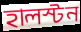
হালস্টন